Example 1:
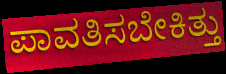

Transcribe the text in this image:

ಪಾವತಿಸಬೇಕಿತ್ತು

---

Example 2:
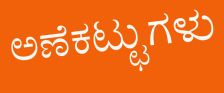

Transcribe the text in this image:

ಅಣೆಕಟ್ಟುಗಳು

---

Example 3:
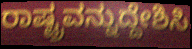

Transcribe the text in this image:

ರಾಷ್ಟ್ರವನ್ನುದ್ದೇಶಿಸಿ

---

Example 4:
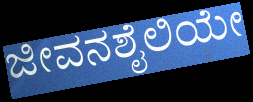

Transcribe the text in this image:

ಜೀವನಶೈಲಿಯೇ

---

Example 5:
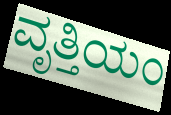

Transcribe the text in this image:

ವೃತ್ತಿಯಂ